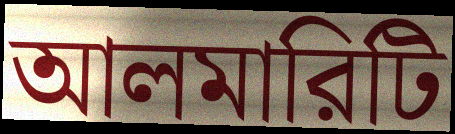
আলমারিটি